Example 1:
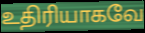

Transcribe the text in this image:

உதிரியாகவே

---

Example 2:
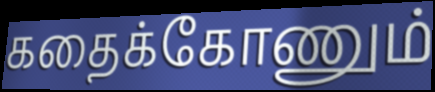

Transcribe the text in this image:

கதைக்கோணும்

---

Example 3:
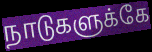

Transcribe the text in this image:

நாடுகளுக்கே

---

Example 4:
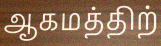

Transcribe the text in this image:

ஆகமத்திற்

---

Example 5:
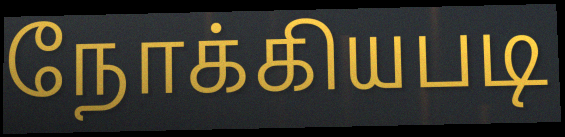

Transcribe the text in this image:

நோக்கியபடி